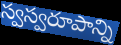
స్వస్వరూపాన్ని